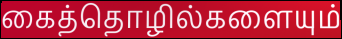
கைத்தொழில்களையும்